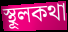
স্থূলকথা